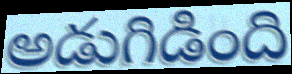
అడుగిడింది